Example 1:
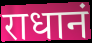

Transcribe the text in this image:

राधानं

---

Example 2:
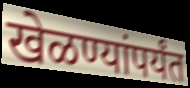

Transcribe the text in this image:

खेळण्यांपर्यंत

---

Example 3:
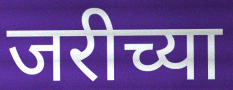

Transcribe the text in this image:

जरीच्या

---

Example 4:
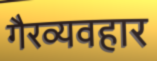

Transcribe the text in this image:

गैरव्यवहार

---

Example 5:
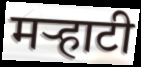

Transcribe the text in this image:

मऱ्हाटी